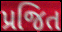
પ્રજિત